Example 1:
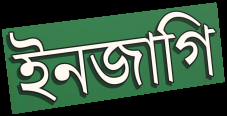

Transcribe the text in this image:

ইনজাগি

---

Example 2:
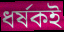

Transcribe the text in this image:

ধর্ষকই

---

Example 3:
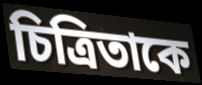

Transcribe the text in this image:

চিত্রিতাকে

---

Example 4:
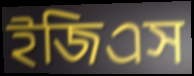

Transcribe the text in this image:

ইজিএস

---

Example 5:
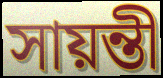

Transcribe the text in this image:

সায়ন্তী